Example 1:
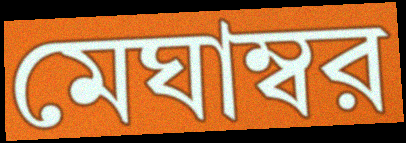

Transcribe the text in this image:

মেঘাম্বর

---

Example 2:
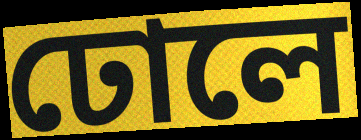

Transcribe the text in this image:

ঢোলে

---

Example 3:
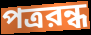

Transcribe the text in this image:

পত্ররন্ধ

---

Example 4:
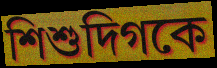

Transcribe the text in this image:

শিশুদিগকে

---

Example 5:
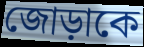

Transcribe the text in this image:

জোড়াকে